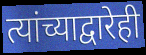
त्यांच्याद्वारेही